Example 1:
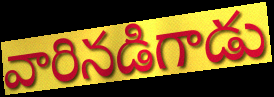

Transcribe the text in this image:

వారినడిగాడు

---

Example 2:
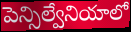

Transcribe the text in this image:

పెన్సిల్వేనియాలో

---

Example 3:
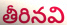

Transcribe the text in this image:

తీరినవి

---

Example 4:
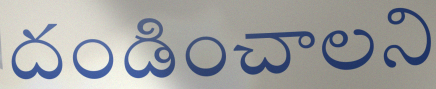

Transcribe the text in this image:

దండించాలని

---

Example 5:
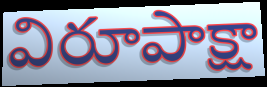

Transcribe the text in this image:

విరూపాక్షా